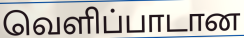
வெளிப்பாடான